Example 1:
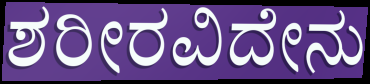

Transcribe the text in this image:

ಶರೀರವಿದೇನು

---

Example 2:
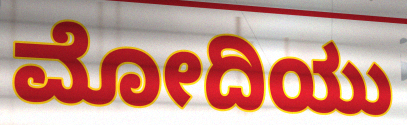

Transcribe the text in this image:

ಮೋದಿಯು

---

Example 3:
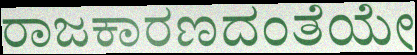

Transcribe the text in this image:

ರಾಜಕಾರಣದಂತೆಯೇ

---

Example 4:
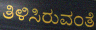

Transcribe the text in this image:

ತಿಳಿಸಿರುವಂತೆ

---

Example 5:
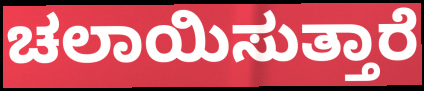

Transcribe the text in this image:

ಚಲಾಯಿಸುತ್ತಾರೆ